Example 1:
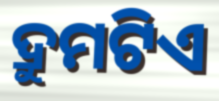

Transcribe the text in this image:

ଦ୍ରୁମଟିଏ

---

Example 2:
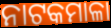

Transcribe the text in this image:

ନାଟକମାଳା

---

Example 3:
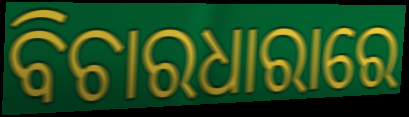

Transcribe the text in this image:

ବିଚାରଧାରାରେ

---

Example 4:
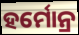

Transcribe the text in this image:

ହର୍ମୋନ୍ର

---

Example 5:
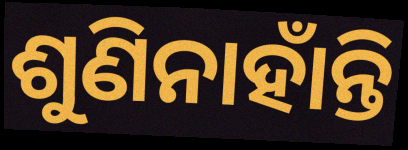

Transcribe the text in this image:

ଶୁଣିନାହାଁନ୍ତି